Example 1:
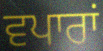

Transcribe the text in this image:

ਵਪਾਰਾਂ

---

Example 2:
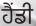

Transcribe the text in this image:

ਹੈਂਡੀ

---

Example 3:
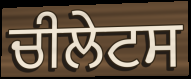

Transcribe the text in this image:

ਚੀਲੇਟਸ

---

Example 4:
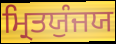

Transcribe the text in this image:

ਮ੍ਰਿਤਯੁੰਜਯ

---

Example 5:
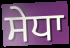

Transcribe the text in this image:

ਸੇਧਾ